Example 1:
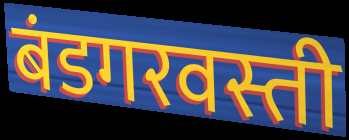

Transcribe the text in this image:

बंडगरवस्ती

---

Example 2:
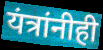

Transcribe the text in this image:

यंत्रांनीही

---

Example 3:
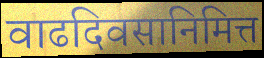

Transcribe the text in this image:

वाढदिवसानिमित्त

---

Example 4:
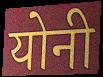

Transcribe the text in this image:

योनी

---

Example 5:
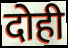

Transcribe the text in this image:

दोही